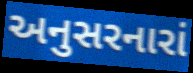
અનુસરનારાં